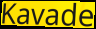
Kavade